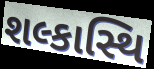
શલ્કાસ્થિ